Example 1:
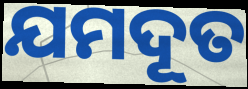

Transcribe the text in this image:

ଯମଦୂତ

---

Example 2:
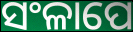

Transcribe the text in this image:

ସଂଳାପେ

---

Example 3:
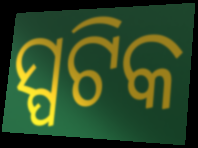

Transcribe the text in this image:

ସ୍ପଟିକ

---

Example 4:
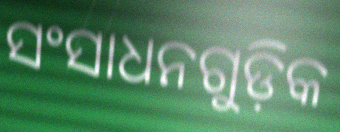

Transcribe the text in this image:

ସଂସାଧନଗୁଡ଼ିକ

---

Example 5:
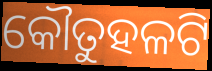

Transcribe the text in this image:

କୌତୁହଳଟି